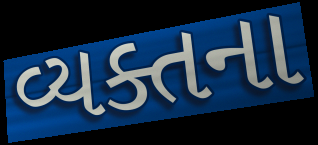
વ્યક્તના